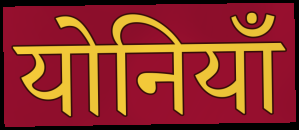
योनियाँ